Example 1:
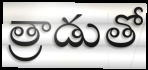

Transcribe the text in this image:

త్రాడుతో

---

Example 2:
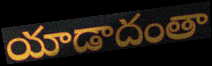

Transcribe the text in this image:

యాడాదంతా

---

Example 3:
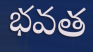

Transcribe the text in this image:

భవత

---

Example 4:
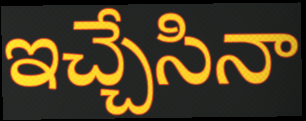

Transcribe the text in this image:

ఇచ్చేసినా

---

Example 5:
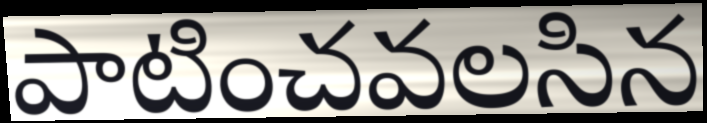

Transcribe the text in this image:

పాటించవలసిన